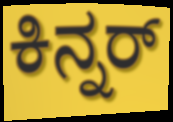
ಕಿನ್ನರ್